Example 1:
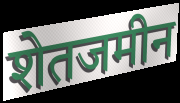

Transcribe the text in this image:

शेतजमीन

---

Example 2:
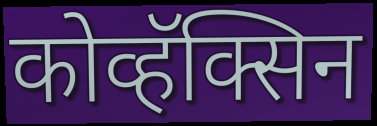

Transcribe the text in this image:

कोव्हॅक्सिन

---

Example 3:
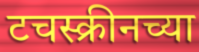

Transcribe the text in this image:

टचस्क्रीनच्या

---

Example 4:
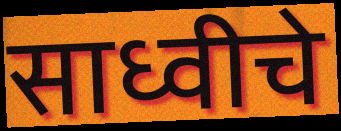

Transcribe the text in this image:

साध्वीचे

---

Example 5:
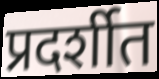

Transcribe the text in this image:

प्रदर्शीत